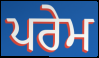
ਪਰੇਮ